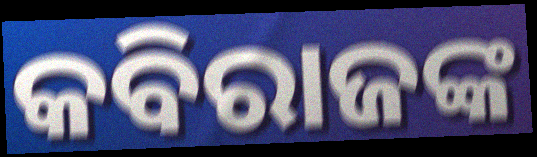
କବିରାଜଙ୍କ